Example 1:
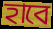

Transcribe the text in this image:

হাবে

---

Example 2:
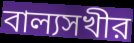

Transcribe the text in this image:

বাল্যসখীর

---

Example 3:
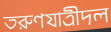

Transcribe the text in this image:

তরুণযাত্রীদল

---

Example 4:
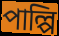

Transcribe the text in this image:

পাল্পি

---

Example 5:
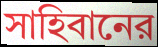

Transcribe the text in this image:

সাহিবানের